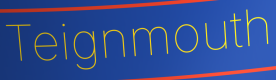
Teignmouth